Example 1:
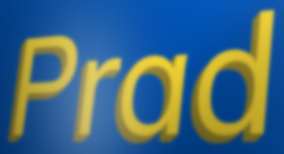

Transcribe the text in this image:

Prad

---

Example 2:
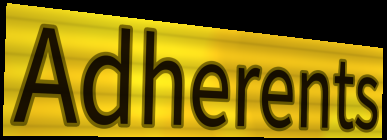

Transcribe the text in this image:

Adherents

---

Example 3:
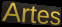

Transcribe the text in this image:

Artes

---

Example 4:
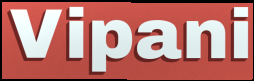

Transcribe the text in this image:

Vipani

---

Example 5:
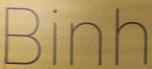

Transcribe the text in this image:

Binh